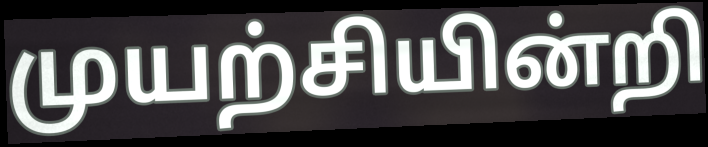
முயற்சியின்றி